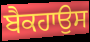
ਬੈਕਹਾਉਸ